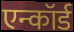
एन्कॉर्ड